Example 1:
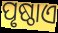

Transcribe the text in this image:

ପୃଷ୍ଠାଏ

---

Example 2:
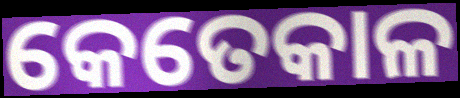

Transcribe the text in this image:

କେତେକାଳ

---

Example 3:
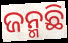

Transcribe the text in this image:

ଜନ୍ମଛି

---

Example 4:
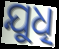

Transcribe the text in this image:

ଯୁଧି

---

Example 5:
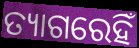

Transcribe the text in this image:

ତ୍ୟାଗରେହିଁ